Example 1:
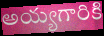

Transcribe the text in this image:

అయ్యగారికి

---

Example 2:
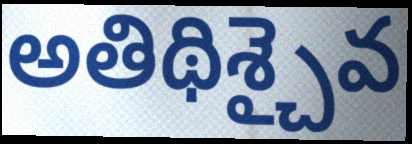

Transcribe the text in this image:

అతిథిశ్చైవ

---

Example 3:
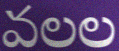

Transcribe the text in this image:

వలల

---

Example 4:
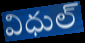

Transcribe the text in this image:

విధుల్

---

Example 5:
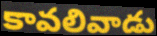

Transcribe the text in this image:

కావలివాడు